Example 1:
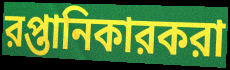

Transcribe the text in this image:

রপ্তানিকারকরা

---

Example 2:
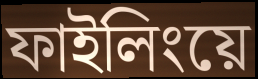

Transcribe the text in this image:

ফাইলিংয়ে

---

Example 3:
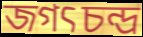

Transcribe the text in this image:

জগৎচন্দ্র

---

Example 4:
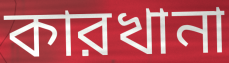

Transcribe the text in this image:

কারখানা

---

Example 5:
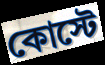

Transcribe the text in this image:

কোস্টে